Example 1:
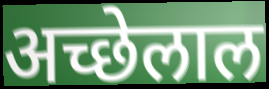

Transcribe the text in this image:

अच्छेलाल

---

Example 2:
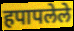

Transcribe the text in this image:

हपापलेले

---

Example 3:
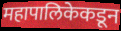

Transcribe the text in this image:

महापालिकेकडून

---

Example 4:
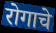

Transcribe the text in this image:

रोगाचे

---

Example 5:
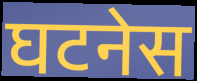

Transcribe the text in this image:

घटनेस